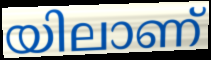
യിലാണ്